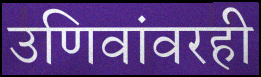
उणिवांवरही